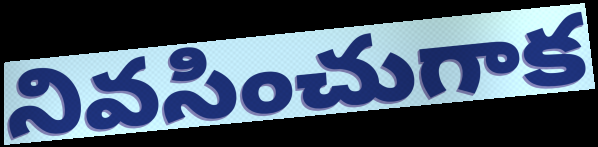
నివసించుగాక